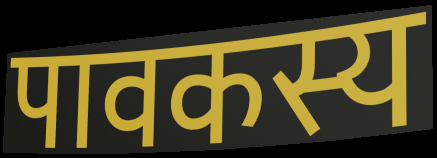
पावकस्य